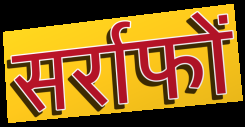
सर्राफों